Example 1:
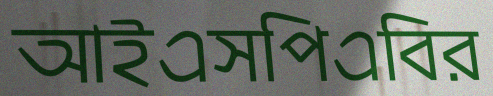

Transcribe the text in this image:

আইএসপিএবির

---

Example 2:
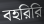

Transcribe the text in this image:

বহরিরি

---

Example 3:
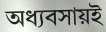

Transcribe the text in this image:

অধ্যবসায়ই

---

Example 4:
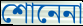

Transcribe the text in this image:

শোনেনা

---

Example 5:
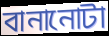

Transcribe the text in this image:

বানানোটা